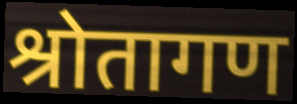
श्रोतागण